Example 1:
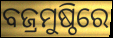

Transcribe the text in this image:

ବଜ୍ରମୁଷ୍ଠିରେ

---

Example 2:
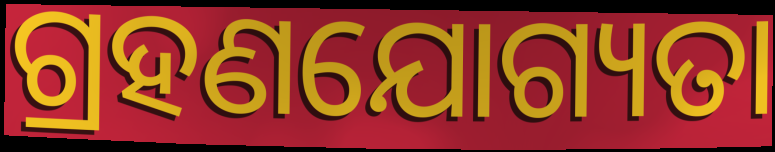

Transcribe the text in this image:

ଗ୍ରହଣଯୋଗ୍ୟତା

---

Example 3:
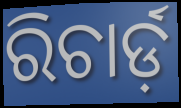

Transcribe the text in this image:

ରିଚାର୍ଡ଼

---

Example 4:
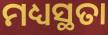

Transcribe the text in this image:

ମଧ୍ୟସ୍ଥତା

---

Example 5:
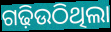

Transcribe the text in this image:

ଗଢ଼ିଉଠିଥିଲା